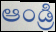
ఆండ్రి